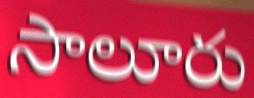
సాలూరు